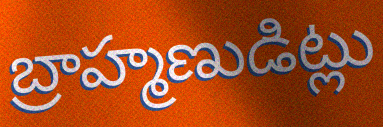
బ్రాహ్మణుడిట్లు